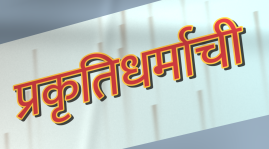
प्रकृतिधर्माची